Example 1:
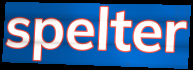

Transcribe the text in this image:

spelter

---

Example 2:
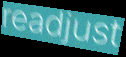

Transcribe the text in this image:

readjust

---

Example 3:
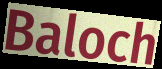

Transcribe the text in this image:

Baloch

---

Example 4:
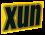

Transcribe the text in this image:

xun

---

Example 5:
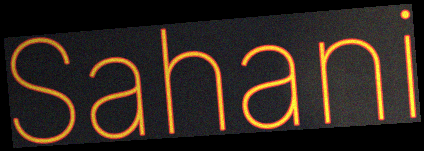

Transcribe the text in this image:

Sahani